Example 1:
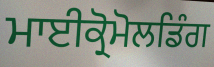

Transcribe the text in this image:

ਮਾਈਕ੍ਰੋਮੋਲਡਿੰਗ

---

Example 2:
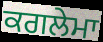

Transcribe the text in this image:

ਕਗਲੇਮਾ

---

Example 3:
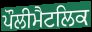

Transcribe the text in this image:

ਪੌਲੀਮੈਟਲਿਕ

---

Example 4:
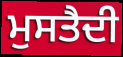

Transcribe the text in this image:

ਮੁਸਤੈਦੀ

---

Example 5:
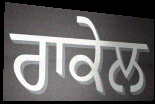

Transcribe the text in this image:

ਰਾਕੇਲ